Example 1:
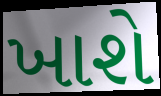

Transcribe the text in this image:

ખાશે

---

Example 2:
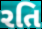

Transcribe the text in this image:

રતિ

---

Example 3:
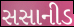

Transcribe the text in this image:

સસાનીડ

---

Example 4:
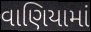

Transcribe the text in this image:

વાણિયામાં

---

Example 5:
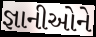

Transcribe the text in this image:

જ્ઞાનીઓને